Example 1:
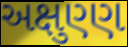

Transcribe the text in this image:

અક્ષુણ્ણ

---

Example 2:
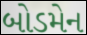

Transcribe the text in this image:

બોડમેન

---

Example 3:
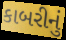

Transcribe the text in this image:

કાબરીનું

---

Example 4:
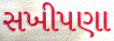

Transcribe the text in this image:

સખીપણા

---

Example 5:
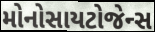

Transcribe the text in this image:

મોનોસાયટોજેન્સ